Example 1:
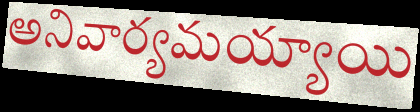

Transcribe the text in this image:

అనివార్యమయ్యాయి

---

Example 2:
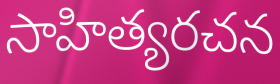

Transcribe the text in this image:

సాహిత్యరచన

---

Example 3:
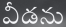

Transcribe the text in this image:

వీడను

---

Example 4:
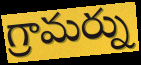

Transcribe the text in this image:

గ్రామర్ను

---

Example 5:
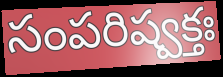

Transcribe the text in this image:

సంపరిష్వక్తః